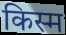
किस्‍म